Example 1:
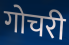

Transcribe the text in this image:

गोचरी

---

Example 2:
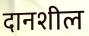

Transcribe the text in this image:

दानशील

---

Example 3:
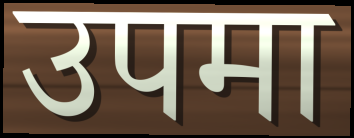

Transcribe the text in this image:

उपमा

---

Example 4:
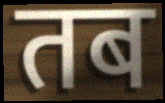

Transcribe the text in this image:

तब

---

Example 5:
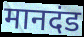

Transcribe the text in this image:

मानदंड